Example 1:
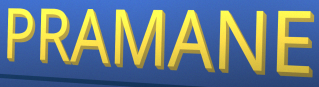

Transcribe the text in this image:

PRAMANE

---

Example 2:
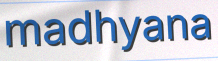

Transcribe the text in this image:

madhyana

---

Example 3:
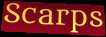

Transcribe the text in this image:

Scarps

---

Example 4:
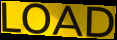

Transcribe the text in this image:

LOAD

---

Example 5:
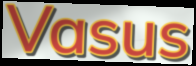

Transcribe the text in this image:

Vasus